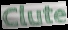
Clute